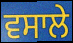
ਵਸਾਲੇ